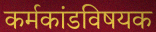
कर्मकांडविषयक